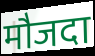
मौजदा